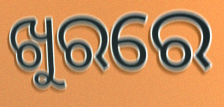
ଖୁରରେ